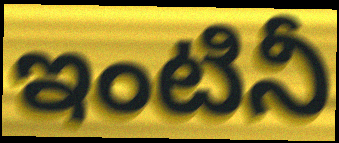
ఇంటినీ